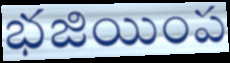
భజియింప